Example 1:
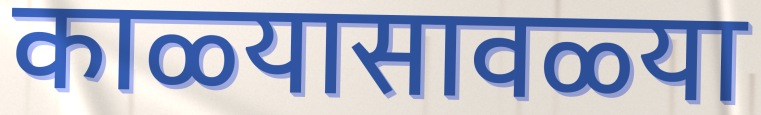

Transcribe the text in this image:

काळ्यासावळ्या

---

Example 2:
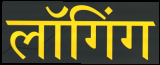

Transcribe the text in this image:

लॉगिंग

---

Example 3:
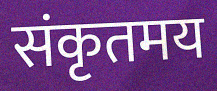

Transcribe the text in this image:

संकृतमय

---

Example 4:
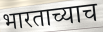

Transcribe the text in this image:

भारताच्याच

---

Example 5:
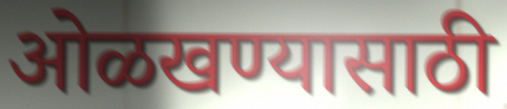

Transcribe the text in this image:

ओळखण्यासाठी